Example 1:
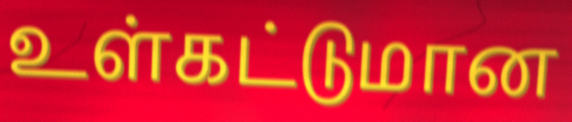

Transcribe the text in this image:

உள்கட்டுமான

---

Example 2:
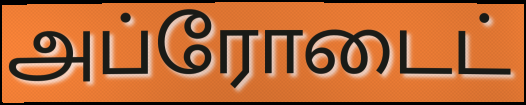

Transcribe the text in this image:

அப்ரோடைட்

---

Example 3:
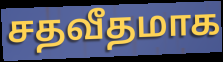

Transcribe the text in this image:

சதவீதமாக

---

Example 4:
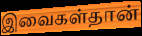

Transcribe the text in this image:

இவைகள்தான்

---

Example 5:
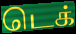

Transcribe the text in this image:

டெக்